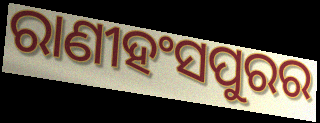
ରାଣୀହଂସପୁରର